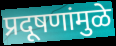
प्रदूषणांमुळे